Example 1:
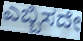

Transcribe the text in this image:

ಎಬ್ಬಿಸದೇ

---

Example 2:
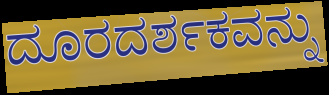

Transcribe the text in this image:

ದೂರದರ್ಶಕವನ್ನು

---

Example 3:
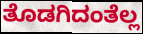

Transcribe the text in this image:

ತೊಡಗಿದಂತೆಲ್ಲ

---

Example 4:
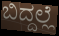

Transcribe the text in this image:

ಬಿದ್ದಲ್ಲೆ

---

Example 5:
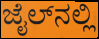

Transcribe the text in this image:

ಜೈಲ್‌ನಲ್ಲಿ